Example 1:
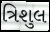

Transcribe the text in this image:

ત્રિશુલ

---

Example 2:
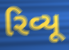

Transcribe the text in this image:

રિવ્યૂ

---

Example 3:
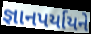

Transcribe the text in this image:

જ્ઞાનપર્યાયને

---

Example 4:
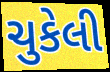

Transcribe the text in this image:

ચુકેલી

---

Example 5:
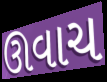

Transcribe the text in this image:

ઊવાચ